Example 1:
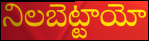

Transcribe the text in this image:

నిలబెట్టాయో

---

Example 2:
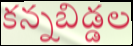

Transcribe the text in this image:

కన్నబిడ్డల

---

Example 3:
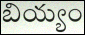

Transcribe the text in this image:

బియ్యం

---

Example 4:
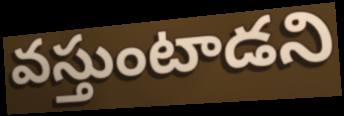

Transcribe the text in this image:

వస్తుంటాడని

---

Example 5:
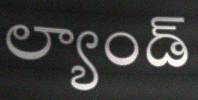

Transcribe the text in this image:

ల్యాండ్